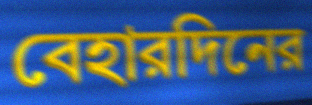
বেহারদিনের